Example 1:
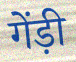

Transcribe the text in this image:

गेंड़ी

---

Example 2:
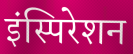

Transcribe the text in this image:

इंस्पिरेशन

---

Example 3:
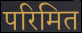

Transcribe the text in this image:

परिमित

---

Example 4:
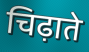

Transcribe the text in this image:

चिढ़ाते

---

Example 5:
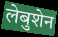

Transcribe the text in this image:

लेबुशेन